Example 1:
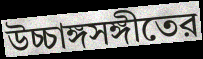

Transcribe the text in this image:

উচ্চাঙ্গসঙ্গীতের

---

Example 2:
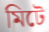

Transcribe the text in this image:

মিটে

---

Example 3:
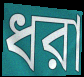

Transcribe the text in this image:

ধরা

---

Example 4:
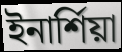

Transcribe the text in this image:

ইনার্শিয়া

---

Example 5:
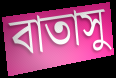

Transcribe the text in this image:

বাতাসু